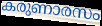
കരുണാരസം